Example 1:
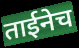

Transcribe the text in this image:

ताईनेच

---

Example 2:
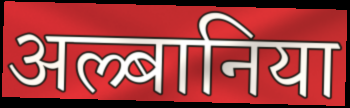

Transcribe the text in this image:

अल्बानिया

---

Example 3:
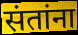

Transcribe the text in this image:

संतांना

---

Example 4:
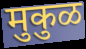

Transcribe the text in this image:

मुकुळ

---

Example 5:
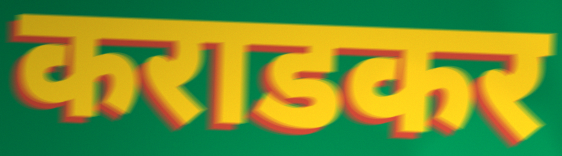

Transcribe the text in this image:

कराडकर